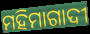
ମହିମାଗାଦୀ